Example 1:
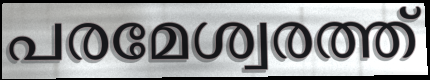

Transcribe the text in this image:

പരമേശ്വരത്ത്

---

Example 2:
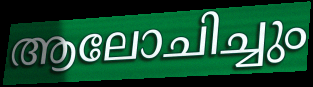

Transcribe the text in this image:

ആലോചിച്ചും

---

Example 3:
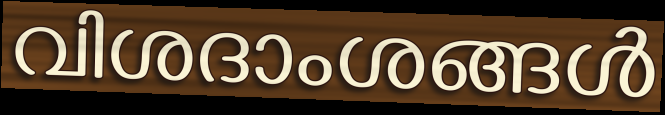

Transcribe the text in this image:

വിശദാംശങ്ങൾ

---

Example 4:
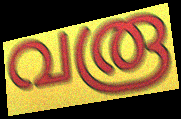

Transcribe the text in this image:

വരൂ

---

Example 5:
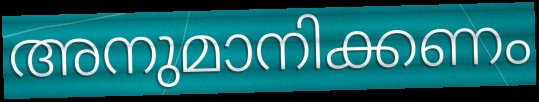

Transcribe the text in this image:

അനുമാനിക്കണം